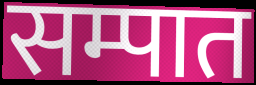
सम्पात